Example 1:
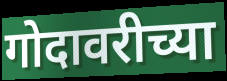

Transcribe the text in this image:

गोदावरीच्या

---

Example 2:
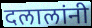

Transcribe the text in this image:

दलालांनी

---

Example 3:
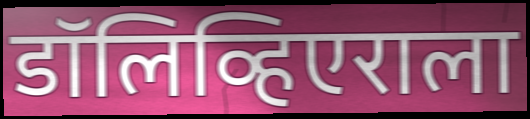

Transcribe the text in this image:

डॉलिव्हिएराला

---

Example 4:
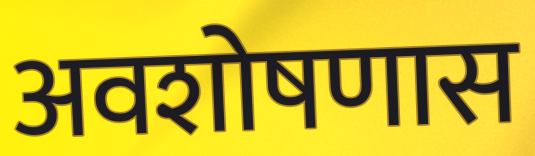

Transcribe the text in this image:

अवशोषणास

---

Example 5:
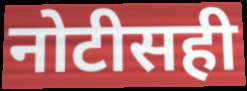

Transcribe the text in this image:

नोटीसही